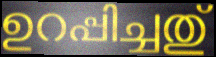
ഉറപ്പിച്ചതു്